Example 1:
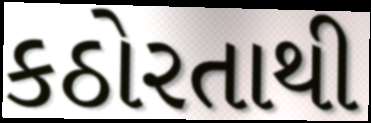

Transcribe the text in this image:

કઠોરતાથી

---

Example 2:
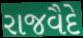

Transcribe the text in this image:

રાજવૈદે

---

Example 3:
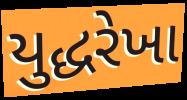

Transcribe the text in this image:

યુદ્ધરેખા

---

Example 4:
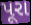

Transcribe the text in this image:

પૂરા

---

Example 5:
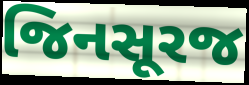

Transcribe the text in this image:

જિનસૂરજ